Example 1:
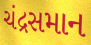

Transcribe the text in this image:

ચંદ્રસમાન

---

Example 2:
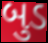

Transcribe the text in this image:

બુડ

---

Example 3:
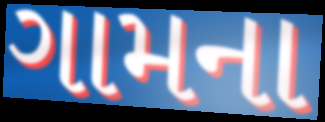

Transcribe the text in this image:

ગામના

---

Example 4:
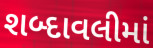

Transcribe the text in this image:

શબ્દાવલીમાં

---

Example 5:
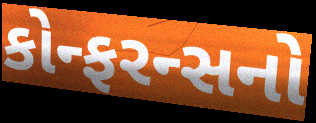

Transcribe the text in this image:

કોન્ફરન્સનો